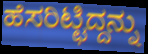
ಹೆಸರಿಟ್ಟಿದ್ದನ್ನು